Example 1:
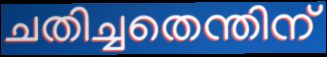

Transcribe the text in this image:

ചതിച്ചതെന്തിന്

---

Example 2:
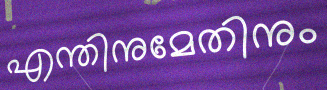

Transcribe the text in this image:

എന്തിനുമേതിനും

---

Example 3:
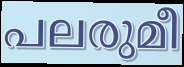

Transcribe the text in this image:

പലരുമീ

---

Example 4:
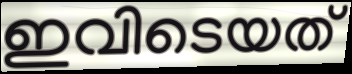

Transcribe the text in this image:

ഇവിടെയത്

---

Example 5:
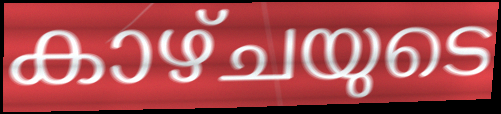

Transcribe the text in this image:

കാഴ്‌ചയുടെ